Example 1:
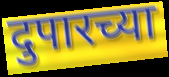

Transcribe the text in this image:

दुपारच्या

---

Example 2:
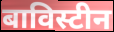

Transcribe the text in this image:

बाविस्टीन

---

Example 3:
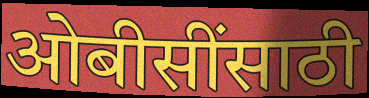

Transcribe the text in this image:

ओबीसींसाठी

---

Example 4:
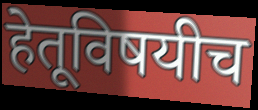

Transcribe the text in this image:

हेतूविषयीच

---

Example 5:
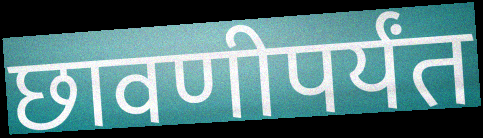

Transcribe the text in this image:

छावणीपर्यंत